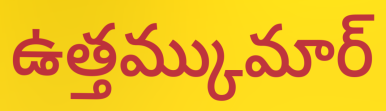
ఉత్తమ్కుమార్